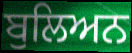
ਬੁਲਿਅਨ